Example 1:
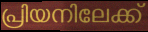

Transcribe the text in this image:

പ്രിയനിലേക്ക്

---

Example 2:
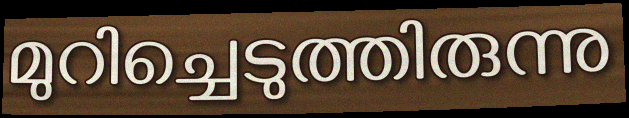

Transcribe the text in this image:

മുറിച്ചെടുത്തിരുന്നു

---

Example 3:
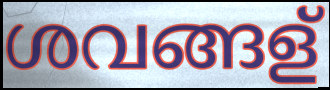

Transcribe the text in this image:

ശവങ്ങള്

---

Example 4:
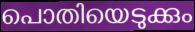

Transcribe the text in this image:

പൊതിയെടുക്കും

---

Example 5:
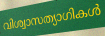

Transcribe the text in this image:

വിശ്വാസത്യാഗികൾ